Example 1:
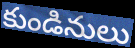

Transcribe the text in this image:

కుండినులు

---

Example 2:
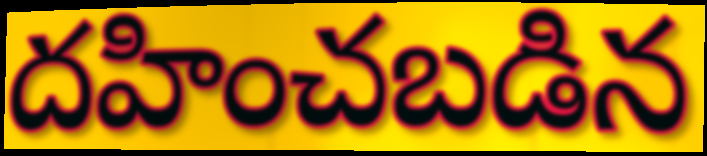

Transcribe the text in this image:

దహించబడిన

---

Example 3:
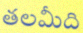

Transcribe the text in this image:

తలమీది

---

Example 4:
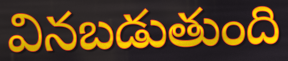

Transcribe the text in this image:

వినబడుతుంది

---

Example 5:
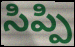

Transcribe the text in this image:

సిప్పి